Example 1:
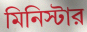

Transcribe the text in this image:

মিনিস্টার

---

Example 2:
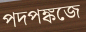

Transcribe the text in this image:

পদপঙ্কজে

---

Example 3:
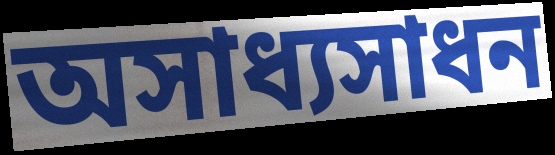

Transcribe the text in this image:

অসাধ্যসাধন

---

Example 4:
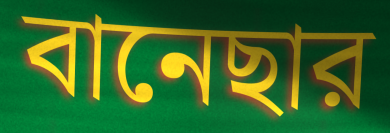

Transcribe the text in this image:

বানেছার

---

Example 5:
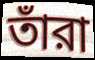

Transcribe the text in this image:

তাঁরা